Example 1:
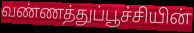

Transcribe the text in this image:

வண்ணத்துப்பூச்சியின்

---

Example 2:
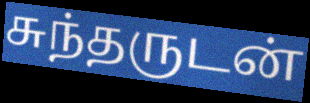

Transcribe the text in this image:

சுந்தருடன்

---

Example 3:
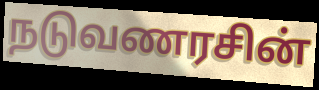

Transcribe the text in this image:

நடுவணரசின்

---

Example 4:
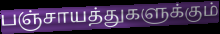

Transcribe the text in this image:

பஞ்சாயத்துகளுக்கும்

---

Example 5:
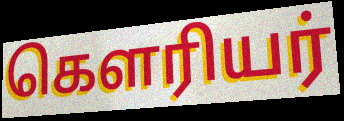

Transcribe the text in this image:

கௌரியர்